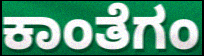
ಕಾಂತೆಗಂ